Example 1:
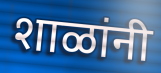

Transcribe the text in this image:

शाळांनी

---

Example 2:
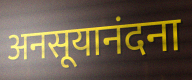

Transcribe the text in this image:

अनसूयानंदना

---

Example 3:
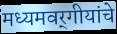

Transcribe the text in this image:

मध्यमवर्गीयांचे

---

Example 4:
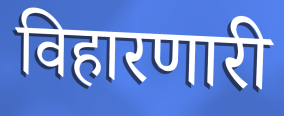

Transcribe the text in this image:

विहारणारी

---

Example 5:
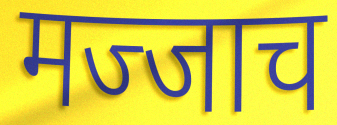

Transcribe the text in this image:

मज्जाच